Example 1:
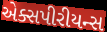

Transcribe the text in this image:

એક્સપીરીયન્સ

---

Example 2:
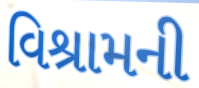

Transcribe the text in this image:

વિશ્રામની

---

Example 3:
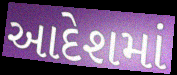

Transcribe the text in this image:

આદેશમાં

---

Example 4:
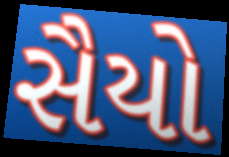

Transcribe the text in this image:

સૈયો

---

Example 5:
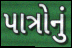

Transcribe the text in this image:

પાત્રોનું